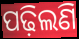
ପଢ଼ିଲଣି